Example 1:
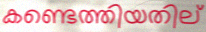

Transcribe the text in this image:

കണ്ടെത്തിയതില്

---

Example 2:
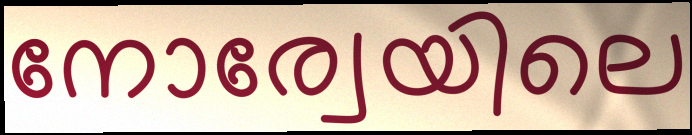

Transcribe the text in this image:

നോര്വേയിലെ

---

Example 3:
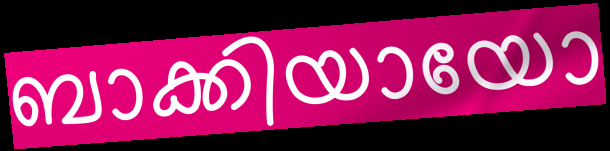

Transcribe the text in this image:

ബാക്കിയായോ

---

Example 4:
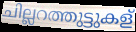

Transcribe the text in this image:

ചില്ലറത്തുട്ടുകള്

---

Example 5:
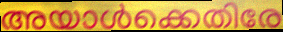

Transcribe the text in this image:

അയാൾക്കെതിരേ